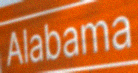
Alabama